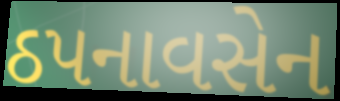
ઠપનાવસેન